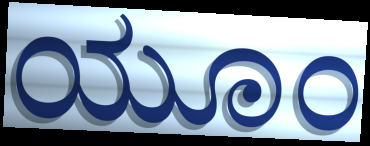
ಯೂಂ